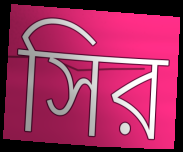
সির